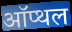
ऑप्थल